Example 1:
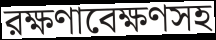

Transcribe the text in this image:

রক্ষণাবেক্ষণসহ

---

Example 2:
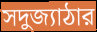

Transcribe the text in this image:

সদুজ্যাঠার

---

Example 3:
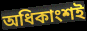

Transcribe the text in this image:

অধিকাংশই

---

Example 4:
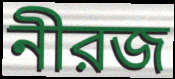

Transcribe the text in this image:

নীরজ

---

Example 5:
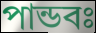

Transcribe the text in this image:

পান্ডবঃ